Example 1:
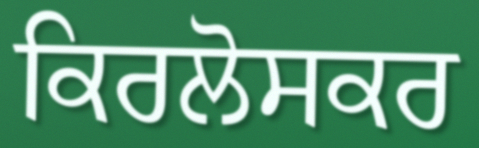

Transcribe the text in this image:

ਕਿਰਲੋਸਕਰ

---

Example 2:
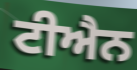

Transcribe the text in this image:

ਟੀਐਨ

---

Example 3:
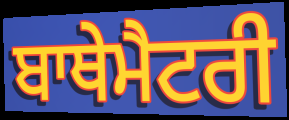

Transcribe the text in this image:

ਬਾਥੇਮੈਟਰੀ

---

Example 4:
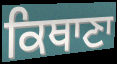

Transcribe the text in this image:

ਕਿਥਾਣਾ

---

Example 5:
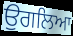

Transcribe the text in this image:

ਉਗਲਿਆ